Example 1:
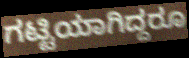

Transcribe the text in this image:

ಗಟ್ಟಿಯಾಗಿದ್ದರೂ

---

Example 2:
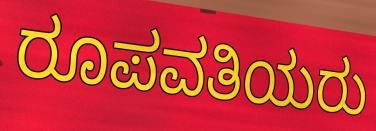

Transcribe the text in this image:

ರೂಪವತಿಯರು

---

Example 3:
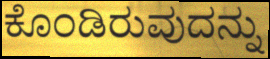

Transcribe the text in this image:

ಕೊಂಡಿರುವುದನ್ನು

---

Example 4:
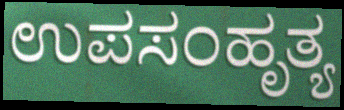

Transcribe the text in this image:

ಉಪಸಂಹೃತ್ಯ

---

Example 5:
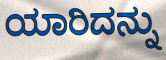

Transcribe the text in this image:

ಯಾರಿದನ್ನು